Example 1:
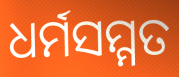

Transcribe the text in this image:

ଧର୍ମସମ୍ମତ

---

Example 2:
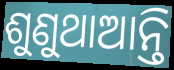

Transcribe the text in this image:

ଶୁଣୁଥାଆନ୍ତି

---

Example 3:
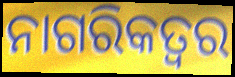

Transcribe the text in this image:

ନାଗରିକତ୍ୱର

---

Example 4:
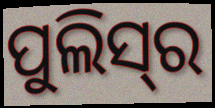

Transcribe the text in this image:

ପୁଲିସ୍‌ର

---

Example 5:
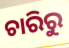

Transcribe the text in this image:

ଚାରିରୁ